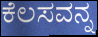
ಕೆಲಸವನ್ನ